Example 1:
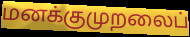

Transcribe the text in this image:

மனக்குமுறலைப்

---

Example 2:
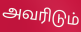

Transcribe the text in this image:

அவரிடும்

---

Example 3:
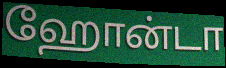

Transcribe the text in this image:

ஹோன்டா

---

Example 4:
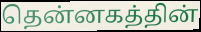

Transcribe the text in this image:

தென்னகத்தின்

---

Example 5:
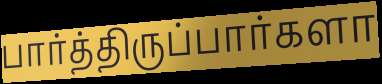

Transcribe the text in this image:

பார்த்திருப்பார்களா